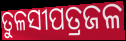
ତୁଳସୀପତ୍ରଜଳ